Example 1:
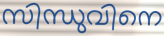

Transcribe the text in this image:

സിന്ധുവിനെ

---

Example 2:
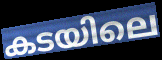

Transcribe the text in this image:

കടയിലെ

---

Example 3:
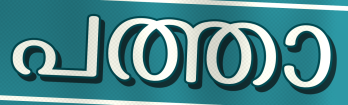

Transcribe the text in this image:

പത്താ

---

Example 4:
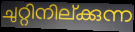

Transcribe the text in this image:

ചുറ്റിനില്ക്കുന്ന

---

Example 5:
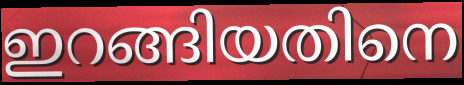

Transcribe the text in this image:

ഇറങ്ങിയതിനെ